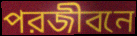
পরজীবনে